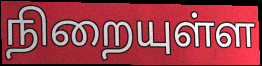
நிறையுள்ள